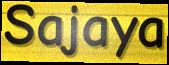
Sajaya